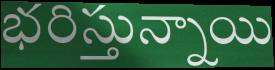
భరిస్తున్నాయి